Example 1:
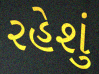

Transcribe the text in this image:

રહેશું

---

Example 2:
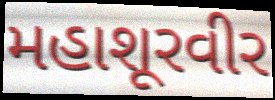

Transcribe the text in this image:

મહાશૂરવીર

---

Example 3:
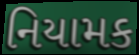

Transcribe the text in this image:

નિયામક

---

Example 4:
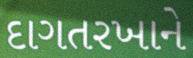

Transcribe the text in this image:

દાગતરખાને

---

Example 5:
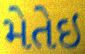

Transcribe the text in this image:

મેતેઇ